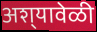
अश्यावेळी